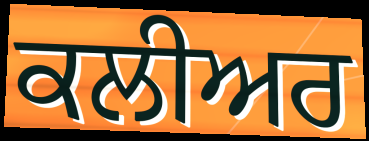
ਕਲੀਅਰ